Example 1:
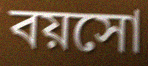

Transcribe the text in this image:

বয়সো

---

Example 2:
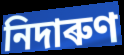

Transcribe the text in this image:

নিদাৰুণ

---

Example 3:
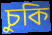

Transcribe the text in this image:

চুকি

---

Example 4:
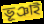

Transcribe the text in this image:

ভূঞাই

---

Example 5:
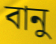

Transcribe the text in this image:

বানু